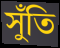
সুঁতি